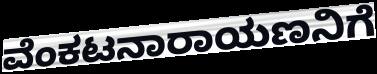
ವೆಂಕಟನಾರಾಯಣನಿಗೆ